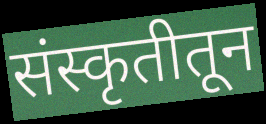
संस्कृतीतून